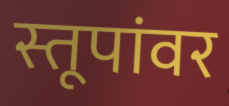
स्तूपांवर